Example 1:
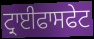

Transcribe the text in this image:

ਟ੍ਰਾਈਫਾਸਫੇਟ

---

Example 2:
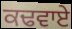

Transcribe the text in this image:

ਕਢਵਾਏ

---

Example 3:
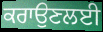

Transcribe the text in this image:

ਕਰਾਉਣਲਈ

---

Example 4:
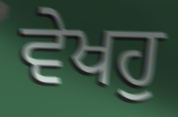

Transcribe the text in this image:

ਵੇਖਹੁ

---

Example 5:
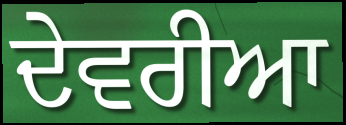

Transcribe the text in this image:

ਦੇਵਰੀਆ